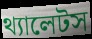
থ্যালেটস